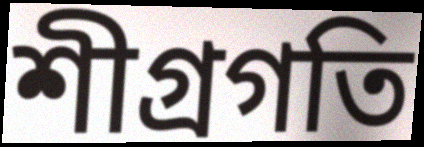
শীগ্রগতি